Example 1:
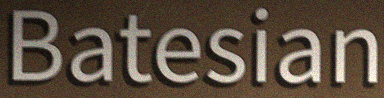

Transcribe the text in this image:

Batesian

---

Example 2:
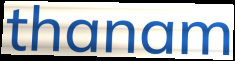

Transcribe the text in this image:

thanam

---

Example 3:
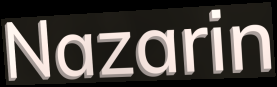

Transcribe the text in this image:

Nazarin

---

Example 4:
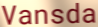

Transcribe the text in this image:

Vansda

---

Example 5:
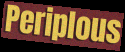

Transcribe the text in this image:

Periplous